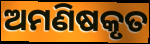
ଅମଣିଷକୃତ